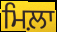
ਮਿਲ਼ਾ